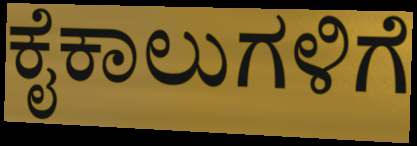
ಕೈಕಾಲುಗಳಿಗೆ